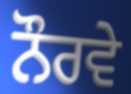
ਨੌਰਵੇ